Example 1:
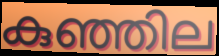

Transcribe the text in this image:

കുഞ്ഞില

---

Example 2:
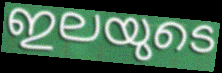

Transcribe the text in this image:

ഇലയുടെ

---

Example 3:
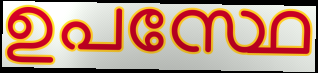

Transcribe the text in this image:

ഉപസ്ഥേ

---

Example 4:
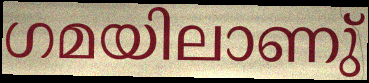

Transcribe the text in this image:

ഗമയിലാണു്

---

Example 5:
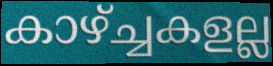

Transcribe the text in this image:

കാഴ്ച്ചകളല്ല